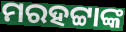
ମରହଟ୍ଟାଙ୍କ